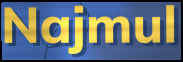
Najmul